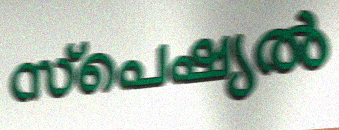
സ്‌പെഷ്യൽ